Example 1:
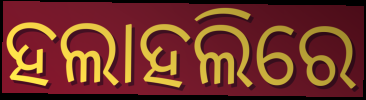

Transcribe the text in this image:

ହଲାହଲିରେ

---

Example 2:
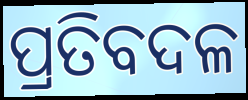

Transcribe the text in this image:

ପ୍ରତିବଦଳ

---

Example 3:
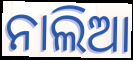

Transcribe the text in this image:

ନାଲିଆ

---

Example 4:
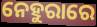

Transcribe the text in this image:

ନେହୁରାରେ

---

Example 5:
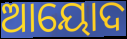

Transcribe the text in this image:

ଆୟୋଦ